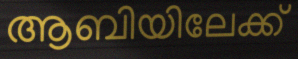
ആബിയിലേക്ക്